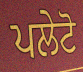
ਪਲੇਟੋ